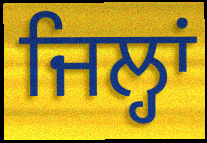
ਜਿਲ੍ਹਾਂ